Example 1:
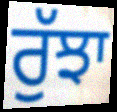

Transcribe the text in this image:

ਰੁੱਝਾ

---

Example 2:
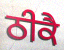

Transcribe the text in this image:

ਠੀਕੈ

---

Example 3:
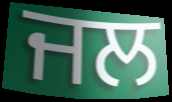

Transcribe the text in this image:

ਜਲ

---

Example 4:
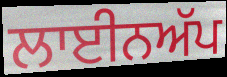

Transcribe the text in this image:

ਲਾਈਨਅੱਪ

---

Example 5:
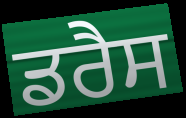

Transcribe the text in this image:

ਡਰੈਸ